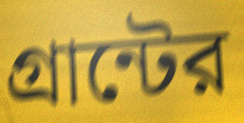
গ্রান্টের